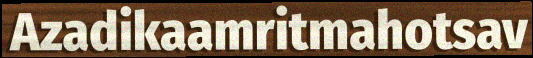
Azadikaamritmahotsav